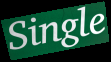
Single